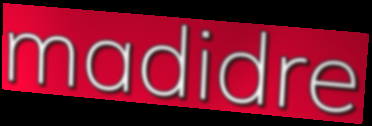
madidre